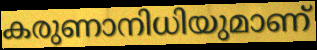
കരുണാനിധിയുമാണ്